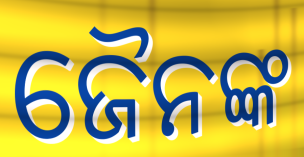
ଜୈନଙ୍କ